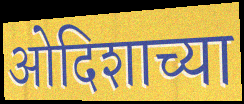
ओदिशाच्या